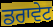
ਡਰਾਵੇਟ